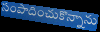
సంపాదించుకొన్నాను